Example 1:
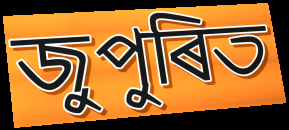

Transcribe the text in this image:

জুপুৰিত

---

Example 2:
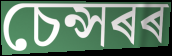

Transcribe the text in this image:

চেন্সৰৰ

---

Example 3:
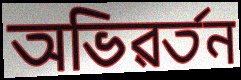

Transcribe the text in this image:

অভিৱৰ্তন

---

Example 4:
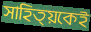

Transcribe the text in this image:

সাহিত্য়কেই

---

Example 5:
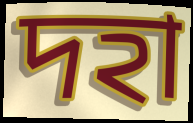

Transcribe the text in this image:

দহা